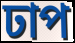
ঢাপ